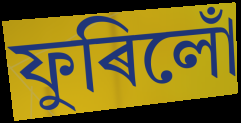
ফুৰিলোঁ